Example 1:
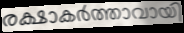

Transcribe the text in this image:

രക്ഷാകർത്താവായി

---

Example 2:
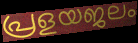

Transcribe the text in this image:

പ്രളയജലം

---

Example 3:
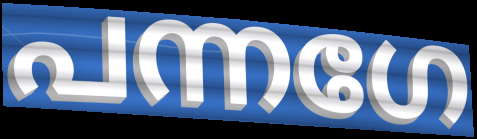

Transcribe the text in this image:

പന്നഗേ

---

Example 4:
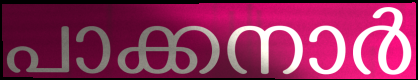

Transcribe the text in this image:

പാക്കനാർ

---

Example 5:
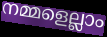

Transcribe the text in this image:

നമ്മളെല്ലാം